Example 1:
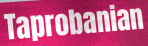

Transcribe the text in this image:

Taprobanian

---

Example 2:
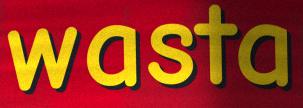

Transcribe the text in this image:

wasta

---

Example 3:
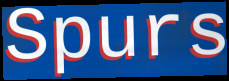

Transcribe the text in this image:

Spurs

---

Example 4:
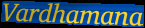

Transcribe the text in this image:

Vardhamana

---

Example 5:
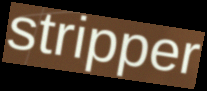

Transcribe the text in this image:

stripper